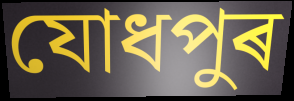
যোধপুৰ